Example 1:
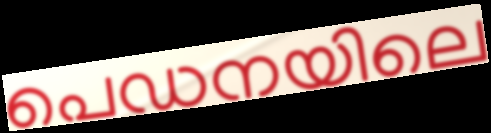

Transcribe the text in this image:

പെഡനയിലെ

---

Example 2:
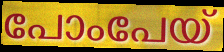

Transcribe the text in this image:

പോംപേയ്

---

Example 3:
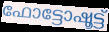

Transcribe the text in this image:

ഫോട്ടോഷൂട്ട്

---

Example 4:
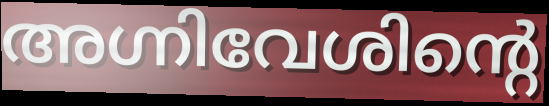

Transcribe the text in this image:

അഗ്നിവേശിന്റെ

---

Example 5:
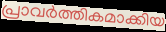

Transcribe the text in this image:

പ്രാവർത്തികമാക്കിയ